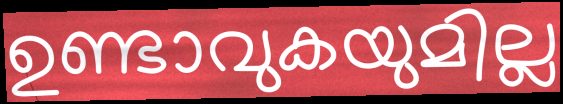
ഉണ്ടാവുകയുമില്ല